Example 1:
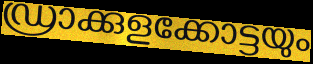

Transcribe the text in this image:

ഡ്രാക്കുളക്കോട്ടയും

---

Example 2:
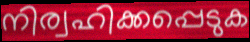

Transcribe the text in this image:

നിര്വഹിക്കപ്പെടുക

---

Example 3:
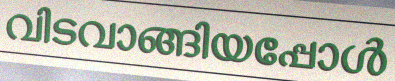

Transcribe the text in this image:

വിടവാങ്ങിയപ്പോൾ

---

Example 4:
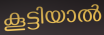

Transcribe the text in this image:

കൂട്ടിയാൽ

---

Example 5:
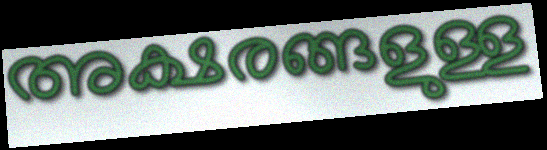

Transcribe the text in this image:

അക്ഷരങ്ങളുള്ള